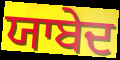
ਯਾਬੇਦ